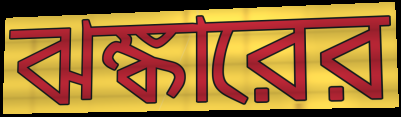
ঝঙ্কারের